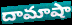
దామాషా